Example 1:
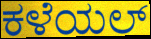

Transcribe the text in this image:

ಕಳೆಯಲ್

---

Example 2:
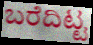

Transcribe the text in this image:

ಬರೆದಿಟ್ಟ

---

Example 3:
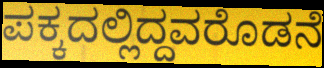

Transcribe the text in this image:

ಪಕ್ಕದಲ್ಲಿದ್ದವರೊಡನೆ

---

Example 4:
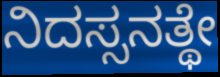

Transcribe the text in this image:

ನಿದಸ್ಸನತ್ಥೇ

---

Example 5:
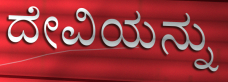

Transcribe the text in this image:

ದೇವಿಯನ್ನು